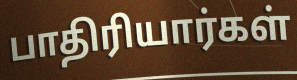
பாதிரியார்கள்